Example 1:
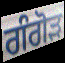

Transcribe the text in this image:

ਗੰਗੋੜ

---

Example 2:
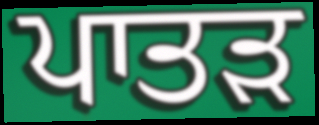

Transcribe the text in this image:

ਪਾਤੜ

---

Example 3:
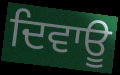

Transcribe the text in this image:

ਦਿਵਾਊ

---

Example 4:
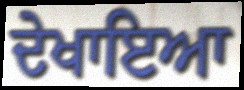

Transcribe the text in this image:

ਦੇਖਾਇਆ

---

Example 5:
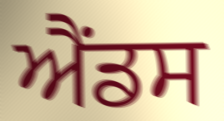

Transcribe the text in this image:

ਐਂਡਸ